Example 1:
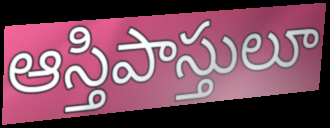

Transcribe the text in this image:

ఆస్తిపాస్తులూ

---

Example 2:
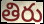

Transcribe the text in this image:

తిరు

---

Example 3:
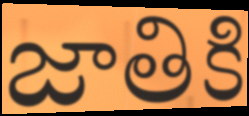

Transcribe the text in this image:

జాతికి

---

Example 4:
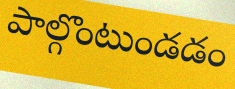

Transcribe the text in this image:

పాల్గొంటుండడం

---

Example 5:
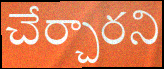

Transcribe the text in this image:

చేర్చారని